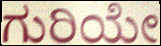
ಗುರಿಯೇ